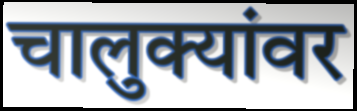
चालुक्यांवर